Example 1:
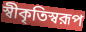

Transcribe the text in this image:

স্বীকৃতিস্বরূপ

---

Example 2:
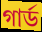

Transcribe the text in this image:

গার্ড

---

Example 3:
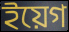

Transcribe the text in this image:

ইয়েগ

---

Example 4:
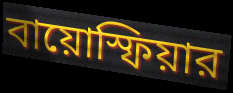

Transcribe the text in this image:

বায়োস্ফিয়ার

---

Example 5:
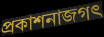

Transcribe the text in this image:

প্রকাশনাজগৎ